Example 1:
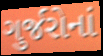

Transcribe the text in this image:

ગુર્જરોનાં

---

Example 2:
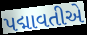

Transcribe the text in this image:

પદ્માવતીએ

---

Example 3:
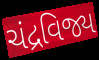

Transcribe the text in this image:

ચંદ્રવિજ્ય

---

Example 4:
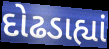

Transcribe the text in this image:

દોઢડાહ્યાં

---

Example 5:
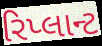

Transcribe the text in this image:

રિપ્લાન્ટ